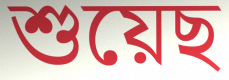
শুয়েছ